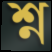
শ্ন